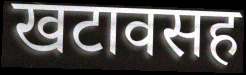
खटावसह